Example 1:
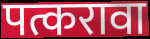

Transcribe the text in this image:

पत्करावा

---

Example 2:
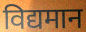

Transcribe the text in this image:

विद्यमान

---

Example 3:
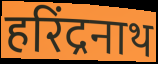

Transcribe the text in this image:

हरिंद्रनाथ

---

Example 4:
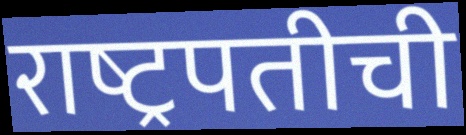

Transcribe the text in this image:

राष्ट्रपतीची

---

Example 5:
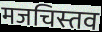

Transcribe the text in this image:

मजचिस्तव